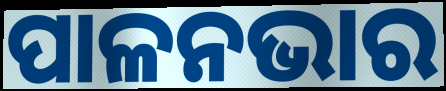
ପାଳନଭାର